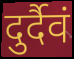
दुर्दैवं